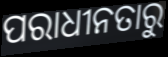
ପରାଧୀନତାରୁ